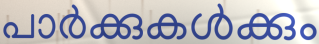
പാർക്കുകൾക്കും